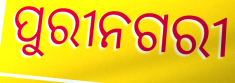
ପୁରୀନଗରୀ